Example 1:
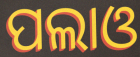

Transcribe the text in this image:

ପଲାଓ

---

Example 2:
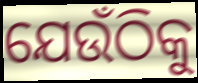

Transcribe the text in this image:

ଯେଉଁଠିକୁ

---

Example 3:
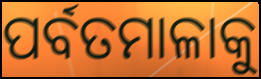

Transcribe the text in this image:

ପର୍ବତମାଳାକୁ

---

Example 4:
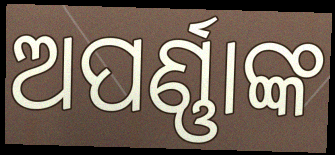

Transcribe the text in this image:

ଅପର୍ଣ୍ଣାଙ୍କ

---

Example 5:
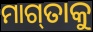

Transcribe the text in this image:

ମାଗ୍‌ତାକୁ